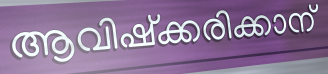
ആവിഷ്ക്കരിക്കാന്